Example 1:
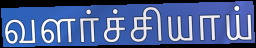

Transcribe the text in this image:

வளர்ச்சியாய்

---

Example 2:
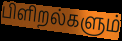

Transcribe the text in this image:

பிளிறல்களும்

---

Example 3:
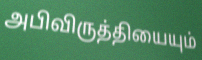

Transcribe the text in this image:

அபிவிருத்தியையும்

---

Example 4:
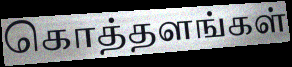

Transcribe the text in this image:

கொத்தளங்கள்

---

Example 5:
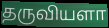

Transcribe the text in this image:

தருவியளா